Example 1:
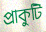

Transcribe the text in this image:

প্রাকুটি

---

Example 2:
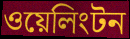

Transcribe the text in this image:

ওয়েলিংটন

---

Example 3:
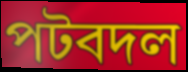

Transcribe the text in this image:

পটবদল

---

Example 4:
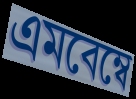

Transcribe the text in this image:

এমবেম্বে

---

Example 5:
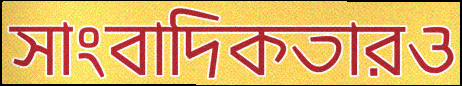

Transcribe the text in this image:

সাংবাদিকতারও